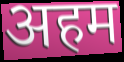
अहम